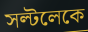
সল্টলেকে